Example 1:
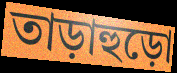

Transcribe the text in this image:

তাড়াহুড়ো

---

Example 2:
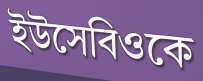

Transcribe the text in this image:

ইউসেবিওকে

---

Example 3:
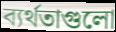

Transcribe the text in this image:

ব্যর্থতাগুলো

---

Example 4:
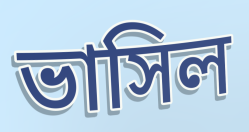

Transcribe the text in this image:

ভাসিল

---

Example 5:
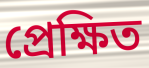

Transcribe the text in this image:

প্রেক্ষিত